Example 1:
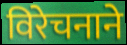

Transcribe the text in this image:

विरेचनाने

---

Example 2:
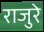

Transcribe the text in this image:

राजुरे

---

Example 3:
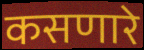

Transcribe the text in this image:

कसणारे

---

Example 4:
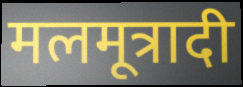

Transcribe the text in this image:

मलमूत्रादी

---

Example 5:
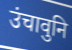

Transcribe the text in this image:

उंचावुनि